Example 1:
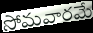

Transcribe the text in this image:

సోమవారమే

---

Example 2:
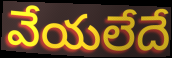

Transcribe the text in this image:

వేయలేదే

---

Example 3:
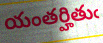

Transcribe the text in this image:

యంతర్హితుఁ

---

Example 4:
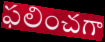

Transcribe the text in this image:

ఫలించగా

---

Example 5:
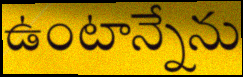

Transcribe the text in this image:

ఉంటాన్నేను